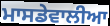
ਮਾਸਡੇਵਾਲੀਆ